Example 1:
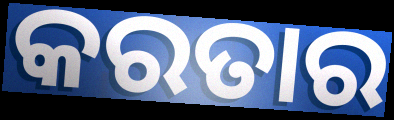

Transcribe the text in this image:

କରତାର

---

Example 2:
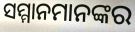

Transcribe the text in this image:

ସମ୍ମାନମାନଙ୍କର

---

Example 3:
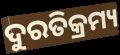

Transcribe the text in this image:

ଦୁରତିକ୍ରମ୍ୟ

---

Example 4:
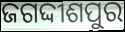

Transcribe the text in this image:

ଜଗଦ୍ଦୀଶପୁର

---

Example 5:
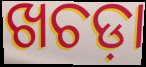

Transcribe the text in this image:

ଖଚଡ଼ା